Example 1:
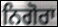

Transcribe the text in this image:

ਨਿਗੋਰਾ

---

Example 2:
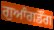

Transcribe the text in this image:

ਗੁਆੰਗਡੌਂਗ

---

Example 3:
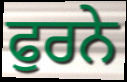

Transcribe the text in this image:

ਫੁਰਨੇ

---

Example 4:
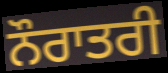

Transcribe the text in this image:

ਨੌਰਾਤਰੀ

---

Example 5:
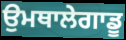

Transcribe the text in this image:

ਉਮਥਾਲੇਗਾਡੂ